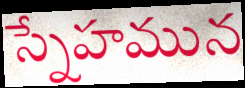
స్నేహమున